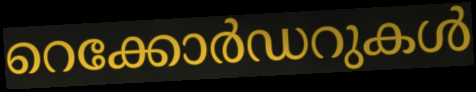
റെക്കോർഡറുകൾ